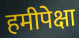
हमीपेक्षा